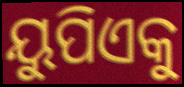
ୟୁପିଏକୁ